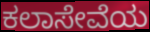
ಕಲಾಸೇವೆಯ